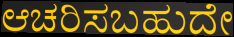
ಆಚರಿಸಬಹುದೇ